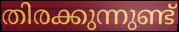
തിരക്കുന്നുണ്ട്